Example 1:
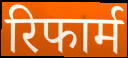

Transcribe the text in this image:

रिफार्म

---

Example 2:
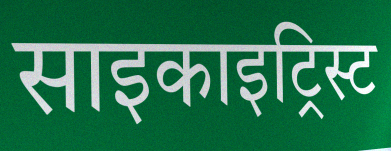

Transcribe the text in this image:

साइकाइट्रिस्ट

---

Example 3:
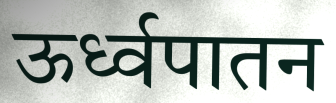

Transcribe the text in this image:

ऊर्ध्वपातन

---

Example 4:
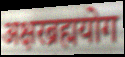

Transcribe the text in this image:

अक्षरब्रह्मयोग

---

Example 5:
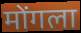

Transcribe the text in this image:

मोंगला